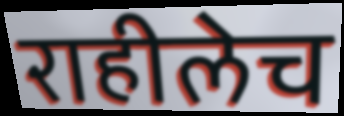
राहीलेच